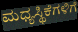
ಮಧ್ಯಸ್ಥಿಕೆಗಳಿಗೆ